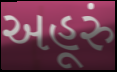
અહૂરું